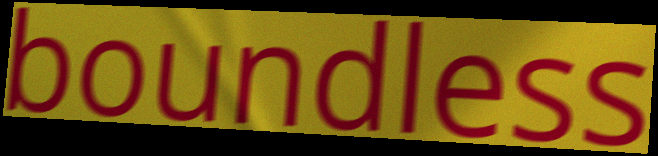
boundless